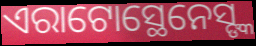
ଏରାଟୋସ୍ଥେନେସ୍ଙ୍କ